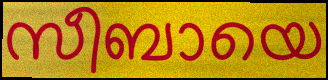
സീബായെ